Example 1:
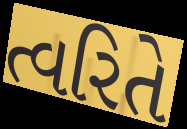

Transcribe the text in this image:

ત્વરિતે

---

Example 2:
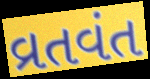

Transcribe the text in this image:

વ્રતવંત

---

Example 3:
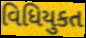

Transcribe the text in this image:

વિધિયુકત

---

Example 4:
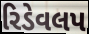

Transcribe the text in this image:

રિડેવલપ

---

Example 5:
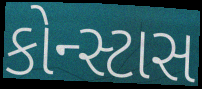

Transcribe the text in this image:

કોન્સ્ટાસ